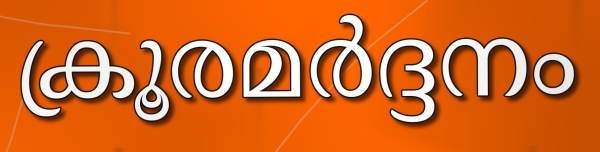
ക്രൂരമർദ്ദനം